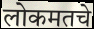
लोकमतचे